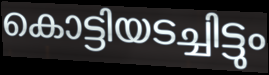
കൊട്ടിയടച്ചിട്ടും